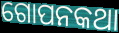
ଗୋପନକଥା